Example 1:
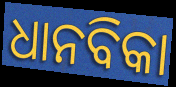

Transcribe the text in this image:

ଧାନବିକା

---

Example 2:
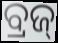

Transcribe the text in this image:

ବ୍ରଜ୍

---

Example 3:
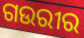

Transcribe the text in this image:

ଗଉରୀର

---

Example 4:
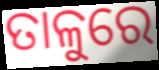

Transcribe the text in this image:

ତାଳୁରେ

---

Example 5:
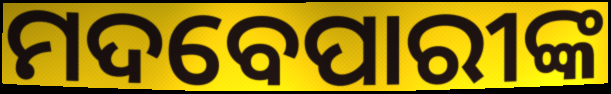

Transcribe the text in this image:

ମଦବେପାରୀଙ୍କ